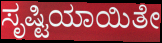
ಸೃಷ್ಟಿಯಾಯಿತೇ